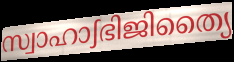
സ്വാഹാഽഭിജിത്യൈ